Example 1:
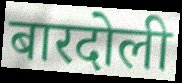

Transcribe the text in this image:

बारदोली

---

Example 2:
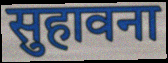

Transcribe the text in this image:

सुहावना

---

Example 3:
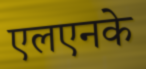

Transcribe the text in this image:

एलएनके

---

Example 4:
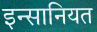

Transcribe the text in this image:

इन्सानियत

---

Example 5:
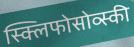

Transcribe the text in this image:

स्क्लिफोसोव्स्की